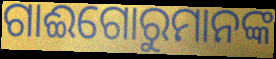
ଗାଈଗୋରୁମାନଙ୍କ